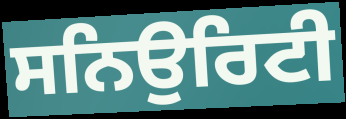
ਸਨਿਉਰਿਟੀ